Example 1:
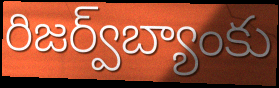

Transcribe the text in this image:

రిజర్వ్‌బ్యాంకు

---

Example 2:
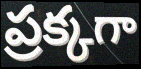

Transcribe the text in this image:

ప్రక్కగా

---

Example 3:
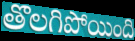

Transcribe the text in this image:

తొలగిపోయింది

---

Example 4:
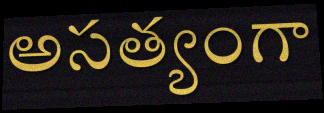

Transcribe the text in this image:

అసత్యంగా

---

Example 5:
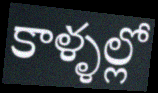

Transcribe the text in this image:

కాళ్ళల్లో